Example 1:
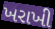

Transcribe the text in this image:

ખરાખી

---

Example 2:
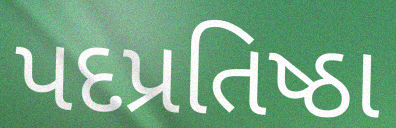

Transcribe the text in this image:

પદપ્રતિષ્ઠા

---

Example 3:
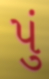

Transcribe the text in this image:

પું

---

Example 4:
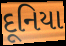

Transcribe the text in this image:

દૂનિયા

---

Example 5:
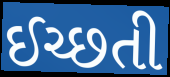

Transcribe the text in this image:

ઈચ્છતી